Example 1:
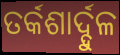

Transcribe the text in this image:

ତର୍କଶାର୍ଦ୍ଦୁଳ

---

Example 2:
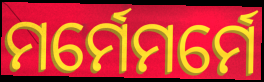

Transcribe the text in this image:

ମର୍ମେମର୍ମେ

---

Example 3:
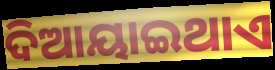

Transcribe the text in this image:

ଦିଆୟାଇଥାଏ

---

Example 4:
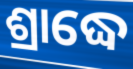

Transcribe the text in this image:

ଶ୍ରାଦ୍ଧେ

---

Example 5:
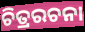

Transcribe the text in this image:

ଚିତ୍ରରଚନା